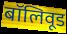
बॉलिवूड